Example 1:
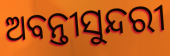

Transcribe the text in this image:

ଅବନ୍ତୀସୁନ୍ଦରୀ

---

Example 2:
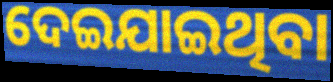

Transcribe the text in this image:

ଦେଇଯାଇଥିବା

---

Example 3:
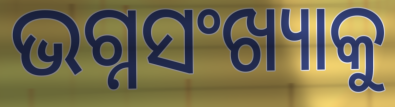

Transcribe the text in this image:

ଭଗ୍ନସଂଖ୍ୟାକୁ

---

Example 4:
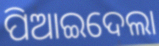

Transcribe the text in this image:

ପିଆଇଦେଲା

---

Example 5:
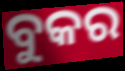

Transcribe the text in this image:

ବୁକର